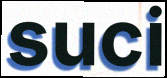
suci